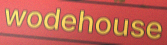
wodehouse